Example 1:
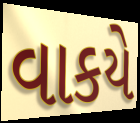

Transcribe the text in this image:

વાકયે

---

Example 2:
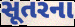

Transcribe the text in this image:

સૂતરના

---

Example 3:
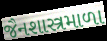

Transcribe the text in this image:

જૈનશાસ્ત્રમાળા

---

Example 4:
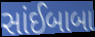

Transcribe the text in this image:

સાંઈબાબા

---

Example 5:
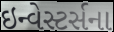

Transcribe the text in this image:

ઇન્વેસ્ટર્સના